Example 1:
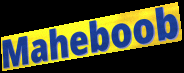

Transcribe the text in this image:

Maheboob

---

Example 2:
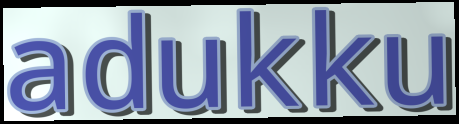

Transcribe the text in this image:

adukku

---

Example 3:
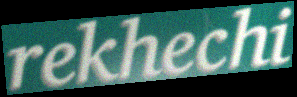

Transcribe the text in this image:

rekhechi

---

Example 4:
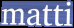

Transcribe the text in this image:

matti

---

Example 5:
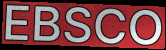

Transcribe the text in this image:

EBSCO